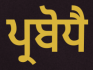
ਪ੍ਰਬੋਧੈ